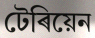
টেৰিয়েন